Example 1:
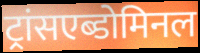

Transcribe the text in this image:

ट्रांसएब्डोमिनल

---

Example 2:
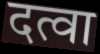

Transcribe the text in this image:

दत्वा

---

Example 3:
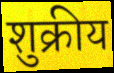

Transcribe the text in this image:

शुक्रीय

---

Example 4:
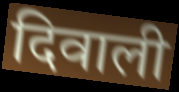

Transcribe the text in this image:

दिवाली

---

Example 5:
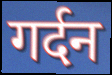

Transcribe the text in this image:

गर्दन